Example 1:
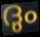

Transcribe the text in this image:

ദും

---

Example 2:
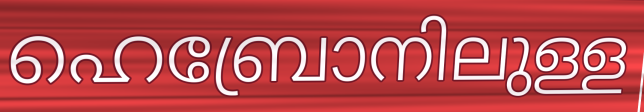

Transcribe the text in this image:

ഹെബ്രോനിലുള്ള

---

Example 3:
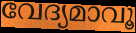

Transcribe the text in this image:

വേദ്യമാവൂ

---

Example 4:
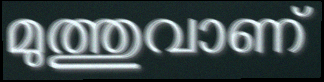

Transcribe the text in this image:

മുത്തുവാണ്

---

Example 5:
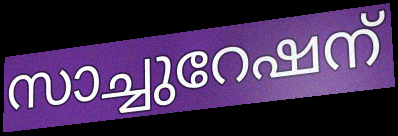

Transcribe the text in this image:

സാച്ചുറേഷന്